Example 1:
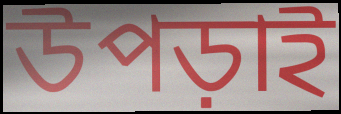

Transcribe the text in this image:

উপড়াই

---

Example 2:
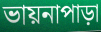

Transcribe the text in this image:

ভায়নাপাড়া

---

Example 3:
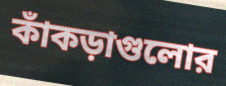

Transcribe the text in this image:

কাঁকড়াগুলোর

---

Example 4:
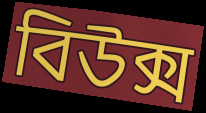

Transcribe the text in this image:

বিউক্স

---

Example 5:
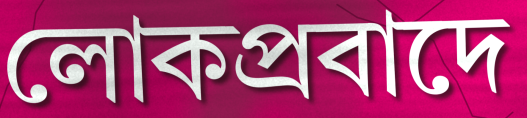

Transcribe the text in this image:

লোকপ্রবাদে